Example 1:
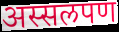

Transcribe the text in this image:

अस्सलपण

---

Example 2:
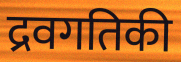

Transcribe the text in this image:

द्रवगतिकी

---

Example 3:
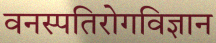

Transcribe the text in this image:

वनस्पतिरोगविज्ञान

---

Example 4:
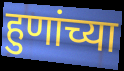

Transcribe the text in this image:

हुणांच्या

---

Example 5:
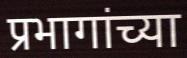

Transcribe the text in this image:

प्रभागांच्या